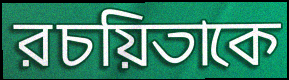
রচয়িতাকে